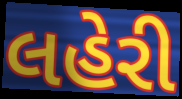
લહેરી